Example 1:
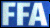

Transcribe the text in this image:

FFA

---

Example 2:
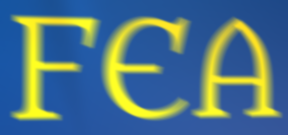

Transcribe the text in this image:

FEA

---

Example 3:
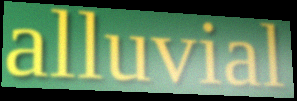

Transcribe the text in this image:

alluvial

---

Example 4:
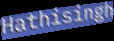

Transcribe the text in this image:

Hathisingh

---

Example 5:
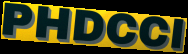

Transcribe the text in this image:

PHDCCI